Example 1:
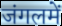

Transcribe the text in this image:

जंगलमें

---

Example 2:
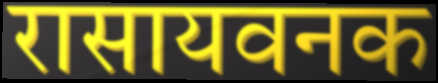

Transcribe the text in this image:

रासायवनक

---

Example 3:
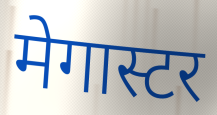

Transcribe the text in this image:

मेगास्टर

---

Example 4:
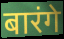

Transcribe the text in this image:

बारंगे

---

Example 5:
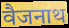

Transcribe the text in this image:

वैजनाथ